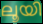
ലൂയി